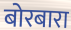
बोरबारा